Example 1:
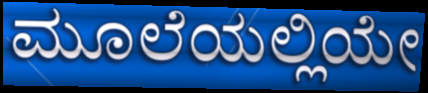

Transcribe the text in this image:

ಮೂಲೆಯಲ್ಲಿಯೇ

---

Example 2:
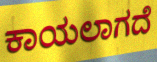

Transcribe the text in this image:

ಕಾಯಲಾಗದೆ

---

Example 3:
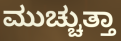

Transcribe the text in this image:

ಮುಚ್ಚುತ್ತಾ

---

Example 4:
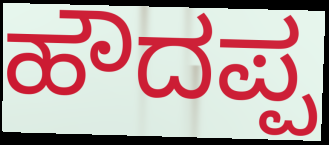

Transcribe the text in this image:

ಹೌದಪ್ಪ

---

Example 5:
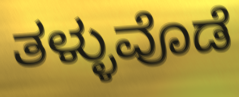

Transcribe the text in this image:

ತಳ್ಳುವೊಡೆ